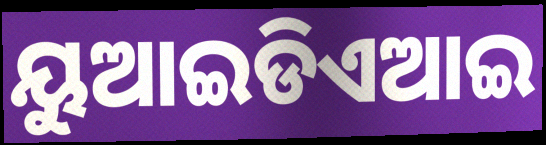
ୟୁଆଇଡିଏଆଇ